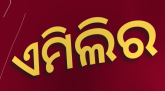
ଏମିଲିର